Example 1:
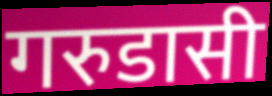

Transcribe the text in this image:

गरुडासी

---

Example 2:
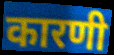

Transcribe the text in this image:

कारणी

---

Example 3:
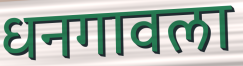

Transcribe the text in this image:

धनगावला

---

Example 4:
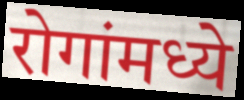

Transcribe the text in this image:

रोगांमध्ये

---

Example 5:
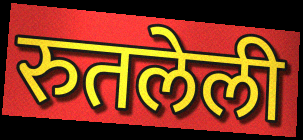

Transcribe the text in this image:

रुतलेली